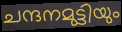
ചന്ദനമുട്ടിയും